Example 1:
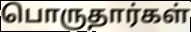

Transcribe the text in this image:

பொருதார்கள்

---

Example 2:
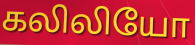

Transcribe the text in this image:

கலிலியோ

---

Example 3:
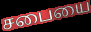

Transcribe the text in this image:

சபையை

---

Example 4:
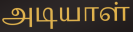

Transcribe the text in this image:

அடியாள்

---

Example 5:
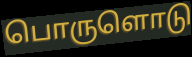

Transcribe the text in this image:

பொருளொடு